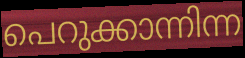
പെറുക്കാന്നിന്ന